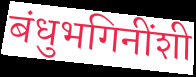
बंधुभगिनींशी